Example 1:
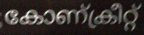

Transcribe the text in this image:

കോണ്ക്രീറ്റ്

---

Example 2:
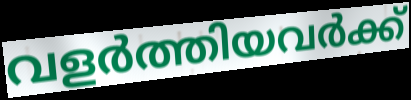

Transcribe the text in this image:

വളർത്തിയവർക്ക്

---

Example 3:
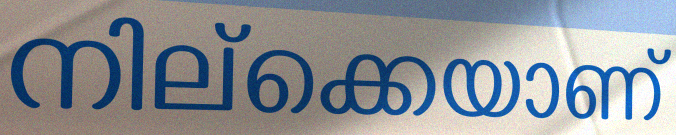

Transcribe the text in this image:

നില്ക്കെയാണ്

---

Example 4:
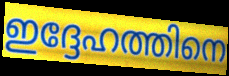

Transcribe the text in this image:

ഇദ്ദേഹത്തിനെ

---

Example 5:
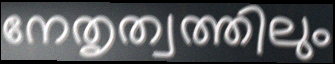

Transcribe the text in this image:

നേതൃത്വത്തിലും